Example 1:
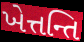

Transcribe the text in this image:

ખેત્તન્તિ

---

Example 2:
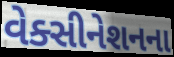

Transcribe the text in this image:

વેક્સીનેશનના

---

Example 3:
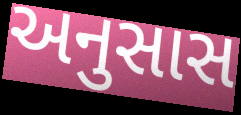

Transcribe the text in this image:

અનુસાસ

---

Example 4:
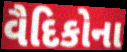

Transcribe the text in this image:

વૈદિકોના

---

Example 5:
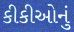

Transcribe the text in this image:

કીકીઓનું